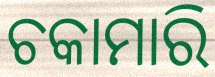
ଚକାମାରି